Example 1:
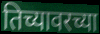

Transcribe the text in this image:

तिच्यावरच्या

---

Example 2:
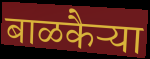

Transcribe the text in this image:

बाळकैऱ्या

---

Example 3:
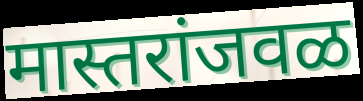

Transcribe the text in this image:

मास्तरांजवळ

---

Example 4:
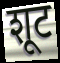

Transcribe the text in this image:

शूट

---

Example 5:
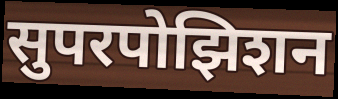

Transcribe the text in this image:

सुपरपोझिशन